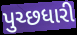
પુચ્છધારી